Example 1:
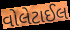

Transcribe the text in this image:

વોલેટાઈલ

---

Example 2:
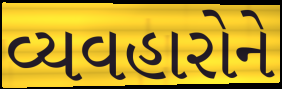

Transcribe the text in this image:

વ્યવહારોને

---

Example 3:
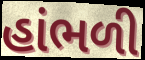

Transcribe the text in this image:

હાંભળી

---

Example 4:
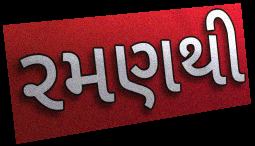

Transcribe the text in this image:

રમણથી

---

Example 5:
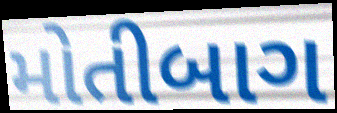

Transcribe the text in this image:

મોતીબાગ